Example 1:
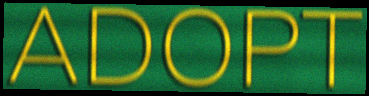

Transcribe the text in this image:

ADOPT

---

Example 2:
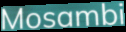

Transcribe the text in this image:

Mosambi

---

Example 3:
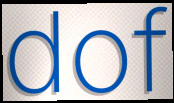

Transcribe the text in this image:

dof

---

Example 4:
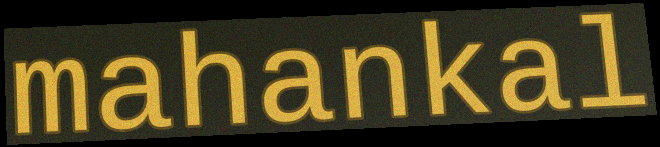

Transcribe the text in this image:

mahankal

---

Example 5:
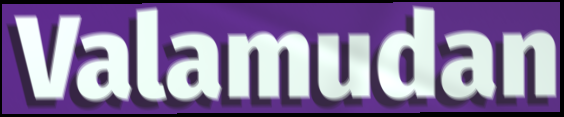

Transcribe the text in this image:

Valamudan